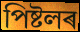
পিষ্টলৰ